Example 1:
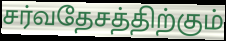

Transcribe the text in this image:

சர்வதேசத்திற்கும்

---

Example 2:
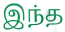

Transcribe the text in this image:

இந்த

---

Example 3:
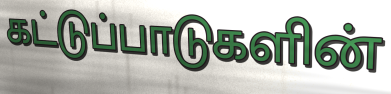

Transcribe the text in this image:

கட்டுப்பாடுகளின்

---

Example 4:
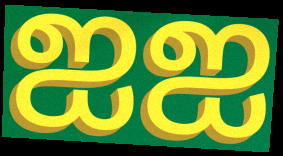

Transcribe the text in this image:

ஐஐ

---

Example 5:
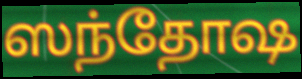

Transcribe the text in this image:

ஸந்தோஷ